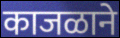
काजळाने